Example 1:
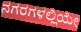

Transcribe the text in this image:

ನಗರಗಳಲ್ಲಿಯೇ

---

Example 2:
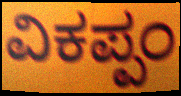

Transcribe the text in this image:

ವಿಕಪ್ಪಂ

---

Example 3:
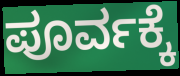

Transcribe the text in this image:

ಪೂರ್ವಕ್ಕೆ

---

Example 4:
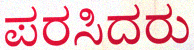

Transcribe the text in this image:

ಪರಸಿದರು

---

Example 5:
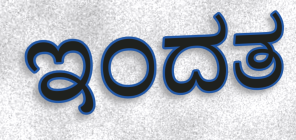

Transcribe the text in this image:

ಇಂದತ